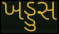
ખડ્ડુસ